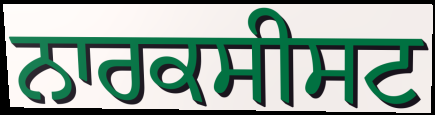
ਨਾਰਕਸੀਸਟ